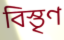
বিস্তৃণ